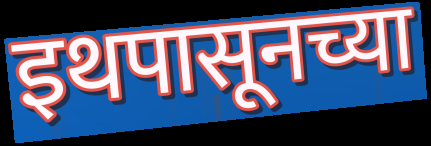
इथपासूनच्या